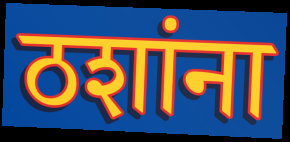
ठशांना